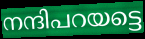
നന്ദിപറയട്ടെ